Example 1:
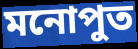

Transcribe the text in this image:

মনোপুত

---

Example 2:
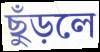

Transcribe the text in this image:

ছুঁড়লে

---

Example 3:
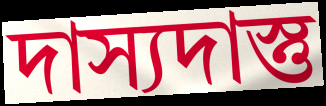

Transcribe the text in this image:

দাস্যদাস্তু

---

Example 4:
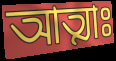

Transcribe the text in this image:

আত্মাঃ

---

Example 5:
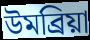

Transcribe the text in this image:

উমব্রিয়া